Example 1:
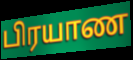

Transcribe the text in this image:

பிரயாண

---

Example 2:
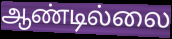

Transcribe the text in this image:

ஆண்டில்லை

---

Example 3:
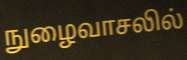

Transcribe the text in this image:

நுழைவாசலில்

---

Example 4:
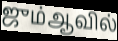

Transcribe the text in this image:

ஜும்ஆவில்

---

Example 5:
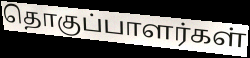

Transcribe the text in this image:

தொகுப்பாளர்கள்